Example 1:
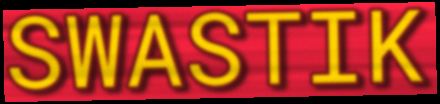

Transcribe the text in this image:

SWASTIK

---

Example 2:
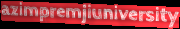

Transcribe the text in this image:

azimpremjiuniversity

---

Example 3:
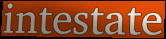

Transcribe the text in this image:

intestate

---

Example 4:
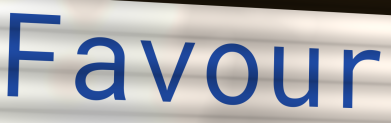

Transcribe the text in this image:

Favour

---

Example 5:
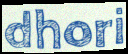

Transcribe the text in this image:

dhori